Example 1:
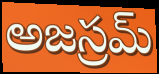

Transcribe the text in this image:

అజస్రమ్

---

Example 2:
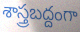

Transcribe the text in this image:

శాస్త్రబద్దంగా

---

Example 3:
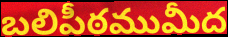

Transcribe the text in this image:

బలిపీఠముమీద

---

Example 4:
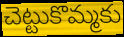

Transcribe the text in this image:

చెట్టుకొమ్మకు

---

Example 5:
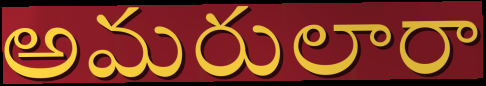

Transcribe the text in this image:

అమరులారా